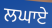
ਲਘਾਏ